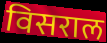
विसराल